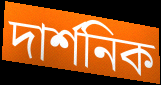
দার্শনিক